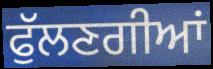
ਫੁੱਲਣਗੀਆਂ